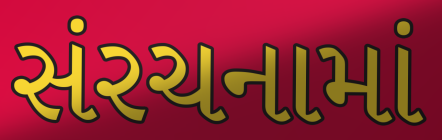
સંરચનામાં